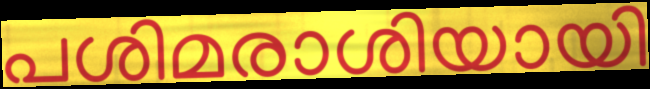
പശിമരാശിയായി